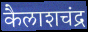
कैलाशचंद्र